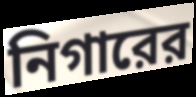
নিগারের